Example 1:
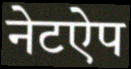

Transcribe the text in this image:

नेटऐप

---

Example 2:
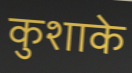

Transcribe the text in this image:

कुशाके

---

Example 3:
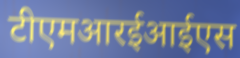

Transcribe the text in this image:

टीएमआरईआईएस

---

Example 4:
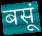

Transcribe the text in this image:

बसूं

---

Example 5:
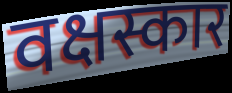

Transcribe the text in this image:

वक्षस्कार